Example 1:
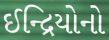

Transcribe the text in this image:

ઈન્દ્રિયોનો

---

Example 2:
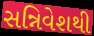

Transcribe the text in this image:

સન્નિવેશથી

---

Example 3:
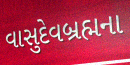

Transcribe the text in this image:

વાસુદેવબ્રહ્મના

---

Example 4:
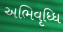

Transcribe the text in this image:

અભિવૃધ્ધિ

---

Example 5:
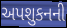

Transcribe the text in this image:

અપશુકનની